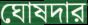
ঘোষদার